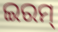
ଇରମ୍